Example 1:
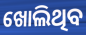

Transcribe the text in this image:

ଖୋଲିଥିବ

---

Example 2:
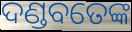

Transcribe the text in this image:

ଦଣ୍ଡବତେଙ୍କ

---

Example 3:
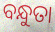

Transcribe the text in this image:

ବନ୍ଧୁତା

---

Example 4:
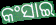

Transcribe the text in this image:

କଂସାଇ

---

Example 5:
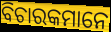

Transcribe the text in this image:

ବିଚାରକମାନେ